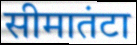
सीमातंटा